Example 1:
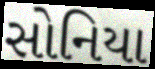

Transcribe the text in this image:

સોનિયા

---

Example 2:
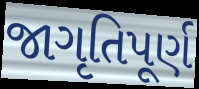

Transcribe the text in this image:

જાગૃતિપૂર્ણ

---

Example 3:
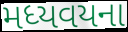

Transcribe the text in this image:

મધ્યવયના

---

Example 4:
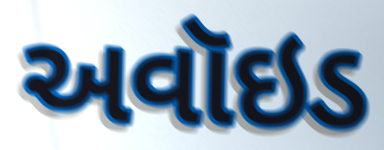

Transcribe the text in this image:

અવૉઇડ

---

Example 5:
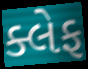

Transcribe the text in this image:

ક્લેફ